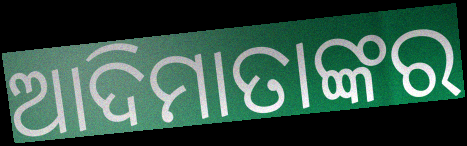
ଆଦିମାତାଙ୍କର